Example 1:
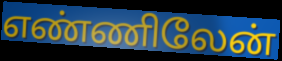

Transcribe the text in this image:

எண்ணிலேன்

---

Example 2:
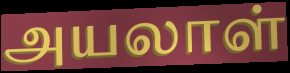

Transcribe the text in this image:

அயலாள்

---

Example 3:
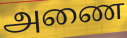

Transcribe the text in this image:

அணை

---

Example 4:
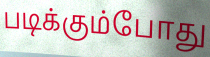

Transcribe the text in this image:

படிக்கும்போது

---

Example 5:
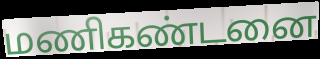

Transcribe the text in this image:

மணிகண்டனை